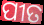
ପୀତ